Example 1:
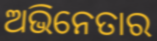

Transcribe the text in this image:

ଅଭିନେତାର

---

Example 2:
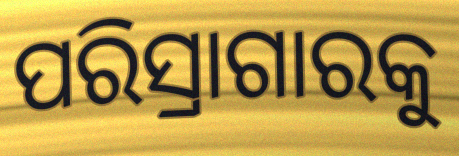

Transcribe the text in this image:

ପରିସ୍ରାଗାରକୁ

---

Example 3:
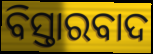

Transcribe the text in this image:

ବିସ୍ତାରବାଦ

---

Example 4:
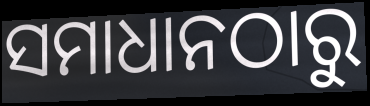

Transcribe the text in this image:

ସମାଧାନଠାରୁ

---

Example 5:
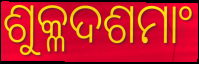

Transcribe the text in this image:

ଶୁକ୍ଳଦଶମାଂ